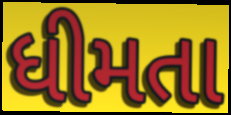
ધીમતા